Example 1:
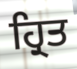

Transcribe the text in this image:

ਹ੍ਰਿਤ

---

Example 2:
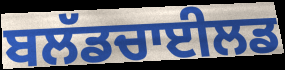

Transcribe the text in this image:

ਬਲੱਡਚਾਈਲਡ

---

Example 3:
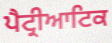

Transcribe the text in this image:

ਪੈਟ੍ਰੀਆਟਿਕ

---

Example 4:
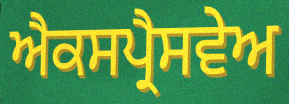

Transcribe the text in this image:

ਐਕਸਪ੍ਰੈਸਵੇਅ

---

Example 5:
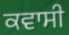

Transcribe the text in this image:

ਕਵਾਸੀ